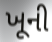
ખૂની